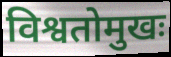
विश्वतोमुखः